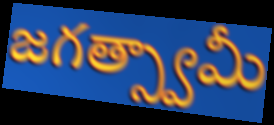
జగత్స్వామీ